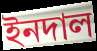
ইনদাল